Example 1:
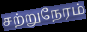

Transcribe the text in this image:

சற்றுநேரம்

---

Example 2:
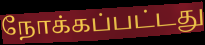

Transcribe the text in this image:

நோக்கப்பட்டது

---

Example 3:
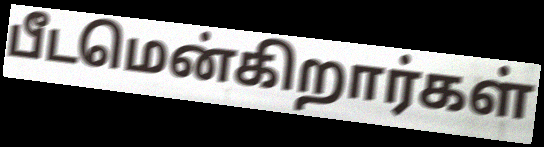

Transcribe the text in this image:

பீடமென்கிறார்கள்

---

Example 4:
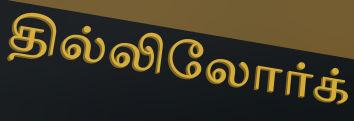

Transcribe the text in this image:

தில்லிலோர்க்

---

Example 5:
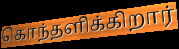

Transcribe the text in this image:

கொந்தளிக்கிறார்